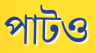
পাটও